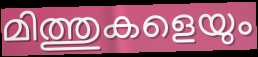
മിത്തുകളെയും